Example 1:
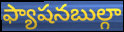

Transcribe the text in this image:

ఫ్యాషనబుల్గా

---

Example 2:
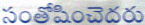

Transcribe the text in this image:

సంతోషించెదరు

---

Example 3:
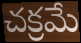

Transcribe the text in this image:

చక్రమే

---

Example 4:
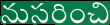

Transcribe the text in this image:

నుసరించి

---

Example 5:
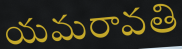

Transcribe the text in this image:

యమరావతి